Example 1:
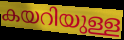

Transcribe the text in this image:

കയറിയുള്ള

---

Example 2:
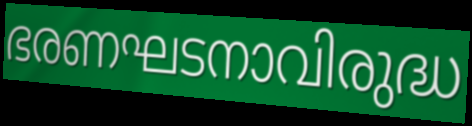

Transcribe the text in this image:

ഭരണഘടനാവിരുദ്ധ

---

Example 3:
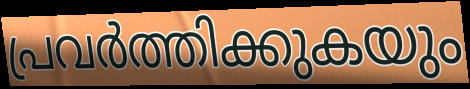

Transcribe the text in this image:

പ്രവർത്തിക്കുകയും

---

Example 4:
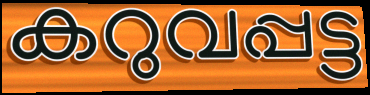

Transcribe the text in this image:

കറുവപ്പട്ട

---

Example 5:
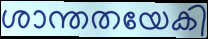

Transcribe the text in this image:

ശാന്തതയേകി